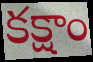
కక్షాం